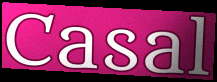
Casal